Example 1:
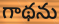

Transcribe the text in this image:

గాథను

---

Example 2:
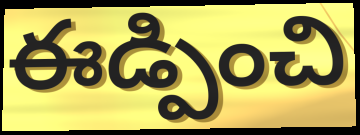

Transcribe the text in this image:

ఈడ్పించి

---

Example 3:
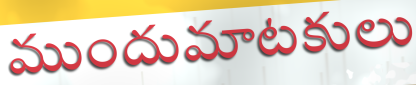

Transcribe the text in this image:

ముందుమాటకులు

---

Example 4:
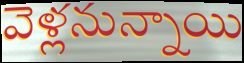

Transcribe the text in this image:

వెళ్లనున్నాయి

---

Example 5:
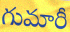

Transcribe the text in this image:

గుమారీ